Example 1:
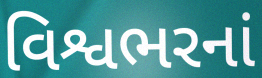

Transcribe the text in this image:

વિશ્વભરનાં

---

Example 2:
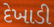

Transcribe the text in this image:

દેખાડી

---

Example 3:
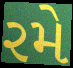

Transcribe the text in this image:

રમે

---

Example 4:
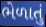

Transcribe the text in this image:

ભેળાતું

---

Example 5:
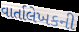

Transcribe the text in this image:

વાર્તાલેખકની